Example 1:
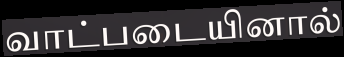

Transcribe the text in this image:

வாட்படையினால்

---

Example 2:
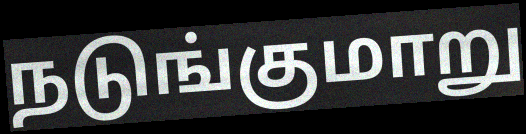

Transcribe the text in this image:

நடுங்குமாறு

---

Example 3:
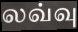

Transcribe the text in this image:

லவ்வு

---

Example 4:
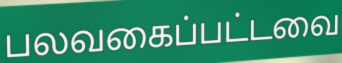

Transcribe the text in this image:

பலவகைப்பட்டவை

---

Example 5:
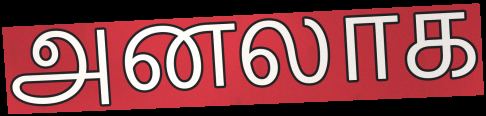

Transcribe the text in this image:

அனலாக